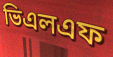
ভিএলএফ